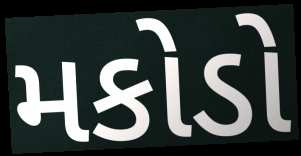
મકોડો